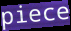
piece